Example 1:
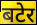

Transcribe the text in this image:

बटेर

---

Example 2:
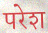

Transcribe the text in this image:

परेश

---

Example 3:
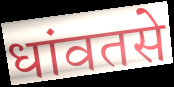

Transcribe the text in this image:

धांवतसे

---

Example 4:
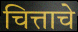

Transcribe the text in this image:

चित्ताचे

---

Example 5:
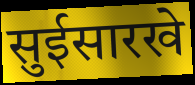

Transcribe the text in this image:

सुईसारखे